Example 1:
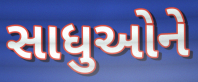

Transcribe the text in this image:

સાધુઓને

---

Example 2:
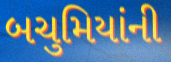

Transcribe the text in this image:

બચુમિયાંની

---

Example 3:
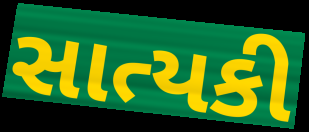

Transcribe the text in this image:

સાત્યકી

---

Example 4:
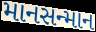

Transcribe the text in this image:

માનસન્માન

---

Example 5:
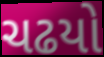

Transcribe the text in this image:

ચઢયો